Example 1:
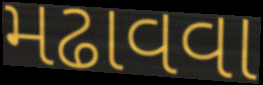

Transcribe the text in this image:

મઢાવવા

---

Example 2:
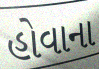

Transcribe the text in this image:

હોવાના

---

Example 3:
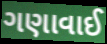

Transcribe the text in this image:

ગણાવાઈ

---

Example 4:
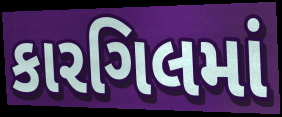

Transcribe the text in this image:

કારગિલમાં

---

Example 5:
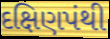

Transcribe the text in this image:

દક્ષિણપંથી